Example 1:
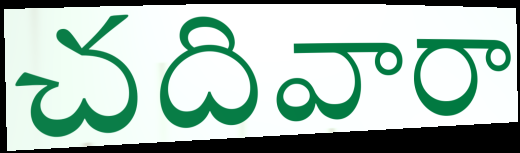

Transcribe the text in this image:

చదివారా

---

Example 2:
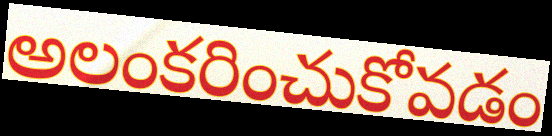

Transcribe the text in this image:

అలంకరించుకోవడం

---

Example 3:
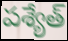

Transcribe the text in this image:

పశ్యేత్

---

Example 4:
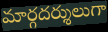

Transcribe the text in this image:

మార్గదర్శులుగా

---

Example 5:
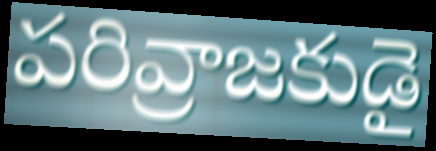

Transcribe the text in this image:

పరివ్రాజకుడై